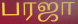
பரஜா